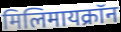
मिलिमायक्रॉन